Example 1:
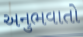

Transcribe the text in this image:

અનુભવાતો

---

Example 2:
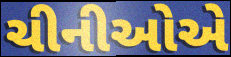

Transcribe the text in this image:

ચીનીઓએ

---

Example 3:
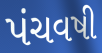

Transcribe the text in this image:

પંચવષી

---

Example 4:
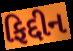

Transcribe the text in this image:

ફિદ્દીન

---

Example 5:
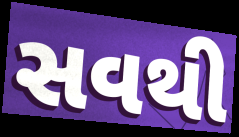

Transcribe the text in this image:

સવથી